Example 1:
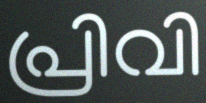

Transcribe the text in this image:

പ്രിവി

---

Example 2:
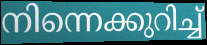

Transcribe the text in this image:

നിന്നെക്കുറിച്ച്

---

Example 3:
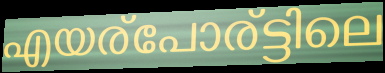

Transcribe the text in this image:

എയര്പോര്ട്ടിലെ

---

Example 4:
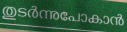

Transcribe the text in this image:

തുടർന്നുപോകാൻ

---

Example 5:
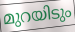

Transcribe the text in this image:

മുറയിടും